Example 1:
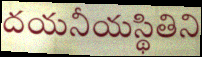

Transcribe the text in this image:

దయనీయస్థితిని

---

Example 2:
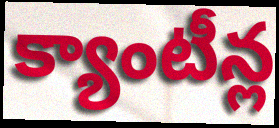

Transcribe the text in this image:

క్యాంటీన్ల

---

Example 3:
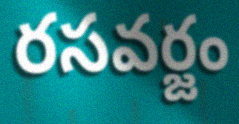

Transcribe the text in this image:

రసవర్జం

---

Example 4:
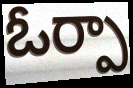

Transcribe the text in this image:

ఓర్పా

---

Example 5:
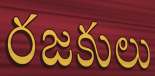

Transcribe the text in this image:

రజకులు